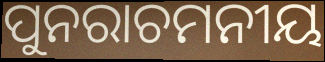
ପୁନରାଚମନୀୟ